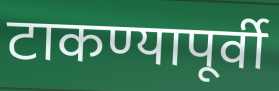
टाकण्यापूर्वी